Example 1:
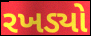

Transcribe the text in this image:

રખડ્યો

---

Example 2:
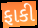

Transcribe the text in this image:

ફાકી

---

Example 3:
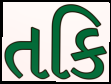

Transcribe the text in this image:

તકિ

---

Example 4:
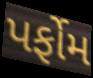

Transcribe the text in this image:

પર્ફોમ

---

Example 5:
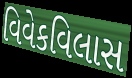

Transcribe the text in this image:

વિવેકવિલાસ